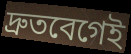
দ্রুতবেগেই